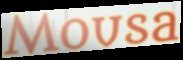
Mousa